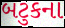
બટુકના